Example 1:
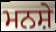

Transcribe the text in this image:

ਮਨਸ਼ੇ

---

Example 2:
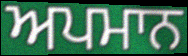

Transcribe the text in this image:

ਅਪਮਾਨ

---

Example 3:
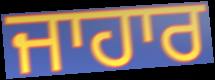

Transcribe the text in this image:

ਜਾਹਾਰ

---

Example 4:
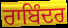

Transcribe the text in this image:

ਰਾਬਿੰਦਰ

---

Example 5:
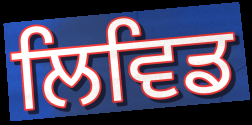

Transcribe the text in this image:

ਲਿਵਿਡ